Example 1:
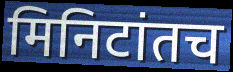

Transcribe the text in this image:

मिनिटांतच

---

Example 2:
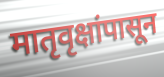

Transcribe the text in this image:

मातृवृक्षांपासून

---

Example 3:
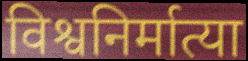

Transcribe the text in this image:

विश्वनिर्मात्या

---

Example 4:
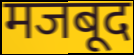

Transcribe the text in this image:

मजबूद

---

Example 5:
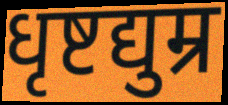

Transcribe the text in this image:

धृष्टद्युम्र